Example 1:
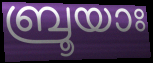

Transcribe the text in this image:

ബ്രൂയാഃ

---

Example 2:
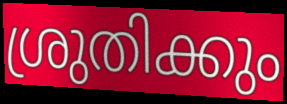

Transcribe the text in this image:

ശ്രുതിക്കും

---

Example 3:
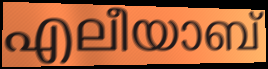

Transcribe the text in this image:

എലീയാബ്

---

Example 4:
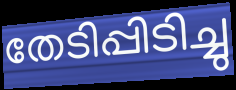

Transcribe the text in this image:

തേടിപ്പിടിച്ചു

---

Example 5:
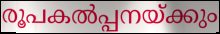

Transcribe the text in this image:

രൂപകൽപ്പനയ്ക്കും